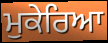
ਮੁਕੇਰਿਆ